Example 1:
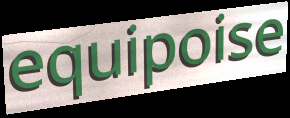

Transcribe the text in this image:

equipoise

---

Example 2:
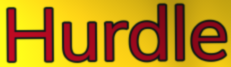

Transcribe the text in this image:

Hurdle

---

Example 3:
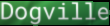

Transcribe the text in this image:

Dogville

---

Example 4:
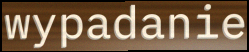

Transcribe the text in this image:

wypadanie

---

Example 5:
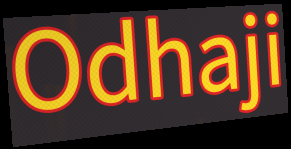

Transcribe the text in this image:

Odhaji